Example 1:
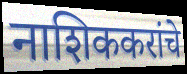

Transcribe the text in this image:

नाशिककरांचे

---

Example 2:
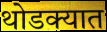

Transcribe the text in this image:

थोडक्‍यात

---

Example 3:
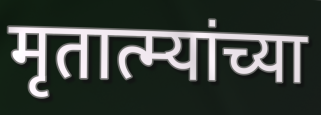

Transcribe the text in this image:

मृतात्म्यांच्या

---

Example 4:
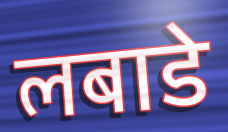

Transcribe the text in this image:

लबाडे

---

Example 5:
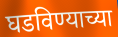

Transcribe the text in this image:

घडविण्याच्या